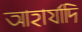
আহার্যাদি